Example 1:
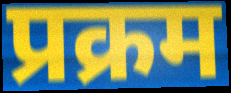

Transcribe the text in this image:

प्रक्रम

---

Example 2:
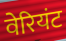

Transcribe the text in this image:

वेरियंट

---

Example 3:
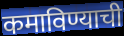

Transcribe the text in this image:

कमाविण्याची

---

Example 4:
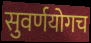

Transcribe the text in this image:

सुवर्णयोगच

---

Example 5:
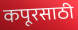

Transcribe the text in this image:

कपूरसाठी